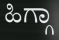
ಹಿಗ್ಗಾ